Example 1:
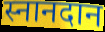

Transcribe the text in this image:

स्नानदान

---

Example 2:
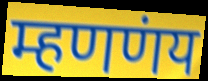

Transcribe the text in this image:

म्हणणंय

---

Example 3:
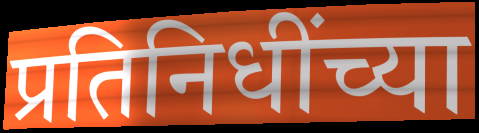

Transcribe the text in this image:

प्रतिनिधींच्या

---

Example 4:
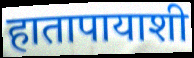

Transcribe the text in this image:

हातापायाशी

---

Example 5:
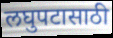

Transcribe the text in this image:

लघुपटासाठी